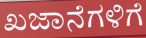
ಖಜಾನೆಗಳಿಗೆ